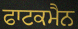
ਫਾਟਕਮੈਨ